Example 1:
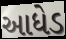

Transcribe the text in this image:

આધેડ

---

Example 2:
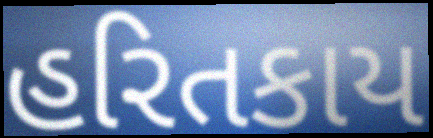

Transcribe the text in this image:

હરિતકાય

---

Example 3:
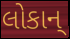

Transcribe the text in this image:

લોકાન્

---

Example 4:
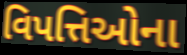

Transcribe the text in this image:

વિપત્તિઓના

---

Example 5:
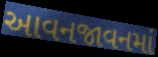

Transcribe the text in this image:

આવનજાવનમાં